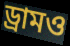
ড্রামও